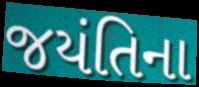
જયંતિના